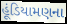
હૂંડિયામણના